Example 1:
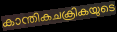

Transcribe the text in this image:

കാന്തികചക്രികയുടെ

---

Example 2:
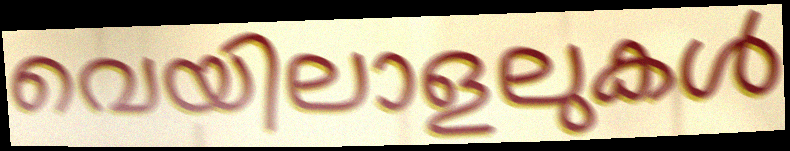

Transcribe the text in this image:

വെയിലാളലുകൾ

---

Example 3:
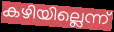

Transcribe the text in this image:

കഴിയില്ലെന്ന്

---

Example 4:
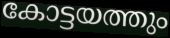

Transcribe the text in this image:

കോട്ടയത്തും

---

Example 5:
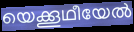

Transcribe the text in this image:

യെക്കൂഥീയേൽ